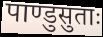
पाण्डुसुताः